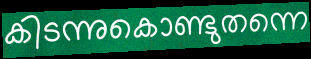
കിടന്നുകൊണ്ടുതന്നെ